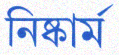
নিষ্কার্ম